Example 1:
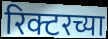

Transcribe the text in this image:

रिक्टरच्या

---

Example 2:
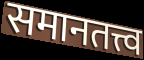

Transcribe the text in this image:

समानतत्त्व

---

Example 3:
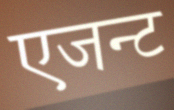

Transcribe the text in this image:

एजन्ट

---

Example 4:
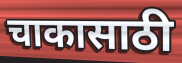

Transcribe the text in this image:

चाकासाठी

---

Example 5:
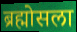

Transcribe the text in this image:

ब्रह्मोसला